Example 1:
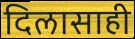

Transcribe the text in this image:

दिलासाही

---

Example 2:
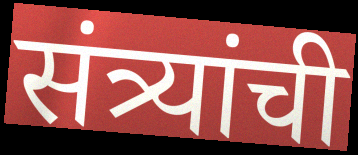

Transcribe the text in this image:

संत्र्यांची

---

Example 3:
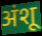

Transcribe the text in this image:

अंशू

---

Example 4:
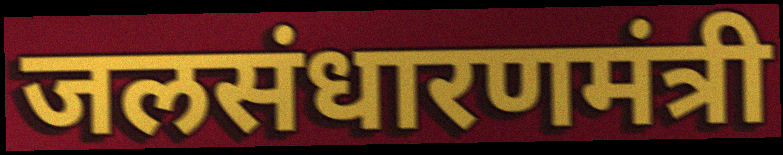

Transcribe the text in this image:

जलसंधारणमंत्री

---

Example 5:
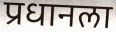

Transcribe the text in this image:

प्रधानला